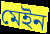
মেইন